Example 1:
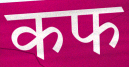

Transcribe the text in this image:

कफ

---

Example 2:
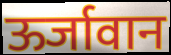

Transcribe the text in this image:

ऊर्जावान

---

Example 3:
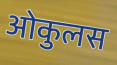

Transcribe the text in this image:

ओकुलस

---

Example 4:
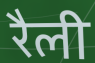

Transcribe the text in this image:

रैली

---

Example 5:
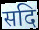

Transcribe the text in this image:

सदि